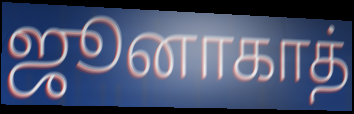
ஜூனாகாத்